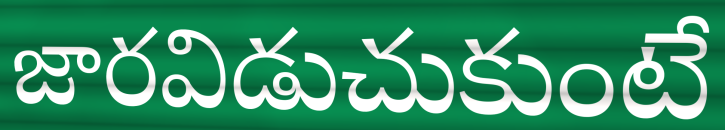
జారవిడుచుకుంటే